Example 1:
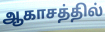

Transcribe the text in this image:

ஆகாசத்தில்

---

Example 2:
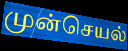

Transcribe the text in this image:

முன்செயல்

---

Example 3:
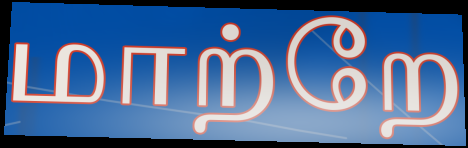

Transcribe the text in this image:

மாற்றே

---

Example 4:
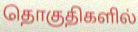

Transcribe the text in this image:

தொகுதிகளில்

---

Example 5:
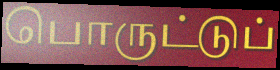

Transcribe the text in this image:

பொருட்டுப்